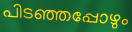
പിടഞ്ഞപ്പോഴും